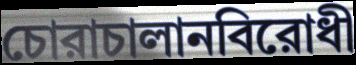
চোরাচালানবিরোধী